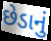
છેડાનું